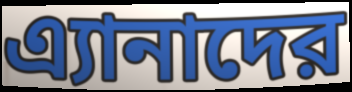
এ্যানাদের